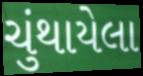
ચુંથાયેલા